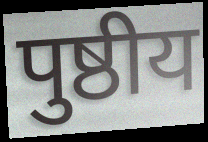
पुष्ठीय